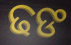
ଢଙ